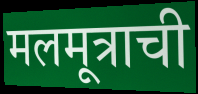
मलमूत्राची